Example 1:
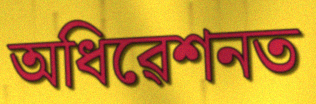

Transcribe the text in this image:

অধিৱেশনত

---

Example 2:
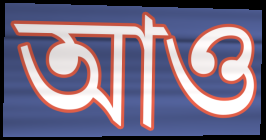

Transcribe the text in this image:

আও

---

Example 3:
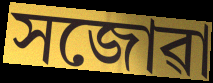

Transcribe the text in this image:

সজোৱা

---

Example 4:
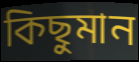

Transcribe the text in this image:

কিছুমান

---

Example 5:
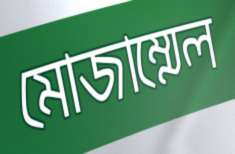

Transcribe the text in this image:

মোজাম্মেল